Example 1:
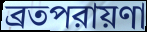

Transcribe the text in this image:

ব্রতপরায়ণা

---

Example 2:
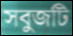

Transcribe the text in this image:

সবুজটি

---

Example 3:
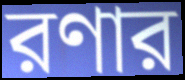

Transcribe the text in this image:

রণার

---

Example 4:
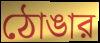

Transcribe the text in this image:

ঠোঙার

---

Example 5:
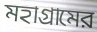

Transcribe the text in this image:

মহাগ্রামের